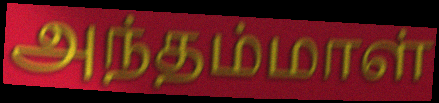
அந்தம்மாள்